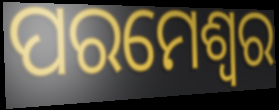
ପରମେଶ୍ୱର